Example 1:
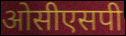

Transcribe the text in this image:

ओसीएसपी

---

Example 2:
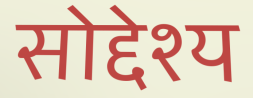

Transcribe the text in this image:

सोद्देश्य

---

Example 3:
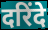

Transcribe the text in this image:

दरिंदे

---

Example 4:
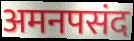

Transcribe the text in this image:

अमनपसंद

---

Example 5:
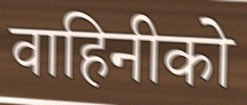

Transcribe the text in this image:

वाहिनीको